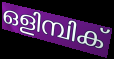
ഒളിമ്പിക്